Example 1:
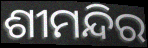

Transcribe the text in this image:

ଶୀମନ୍ଦିର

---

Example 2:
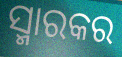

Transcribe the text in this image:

ସ୍ମାରକର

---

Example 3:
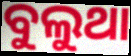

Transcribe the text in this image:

ବୁଲୁଥା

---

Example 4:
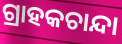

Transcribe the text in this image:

ଗ୍ରାହକଚାନ୍ଦା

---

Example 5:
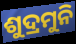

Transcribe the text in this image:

ଶୁଦ୍ରମୁନି